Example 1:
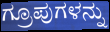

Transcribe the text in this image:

ಗ್ರೂಪುಗಳನ್ನು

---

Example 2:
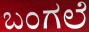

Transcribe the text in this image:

ಬಂಗಲೆ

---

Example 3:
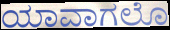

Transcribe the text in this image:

ಯಾವಾಗಲೊ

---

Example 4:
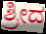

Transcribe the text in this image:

ಶ್ರೀದ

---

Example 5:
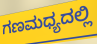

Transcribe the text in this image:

ಗಣಮಧ್ಯದಲ್ಲಿ